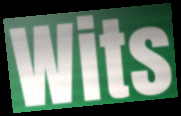
Wits